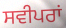
ਸਵੀਪਰਾਂ